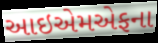
આઇએમએફના